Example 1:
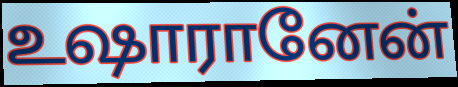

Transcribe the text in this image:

உஷாரானேன்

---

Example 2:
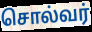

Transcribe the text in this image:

சொல்வர்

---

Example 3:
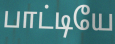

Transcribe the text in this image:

பாட்டியே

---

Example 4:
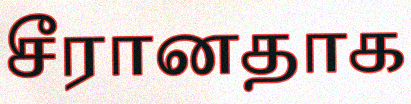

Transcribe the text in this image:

சீரானதாக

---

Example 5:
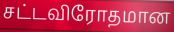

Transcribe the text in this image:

சட்டவிரோதமான